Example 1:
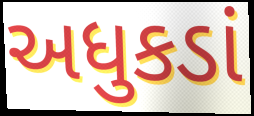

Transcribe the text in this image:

અધુકડાં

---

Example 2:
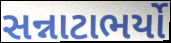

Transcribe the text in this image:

સન્નાટાભર્યો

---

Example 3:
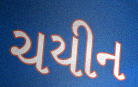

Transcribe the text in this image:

ચયીન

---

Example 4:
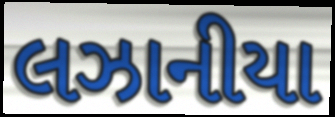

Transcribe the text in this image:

લઝાનીયા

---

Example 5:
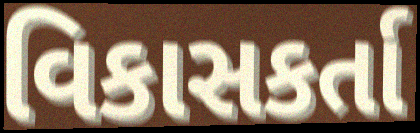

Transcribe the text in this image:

વિકાસકર્તા